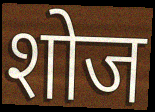
शोज